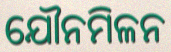
ଯୌନମିଳନ